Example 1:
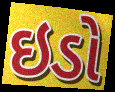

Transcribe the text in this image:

ઇડો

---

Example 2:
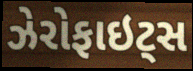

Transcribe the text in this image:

ઝેરોફાઇટ્સ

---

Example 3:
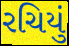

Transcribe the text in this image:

રચિયું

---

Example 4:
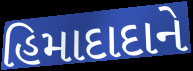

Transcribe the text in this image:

હિમાદાદાને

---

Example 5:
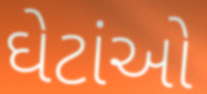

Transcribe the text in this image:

ઘેટાંઓ